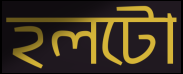
হলটো